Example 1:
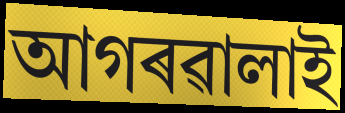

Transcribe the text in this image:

আগৰৱালাই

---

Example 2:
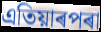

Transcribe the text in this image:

এতিয়াৰপৰা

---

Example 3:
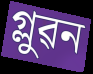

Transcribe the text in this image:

গ্লুৱন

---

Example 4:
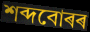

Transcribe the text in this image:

শব্দবোৰৰ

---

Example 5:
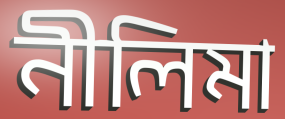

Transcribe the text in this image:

নীলিমা